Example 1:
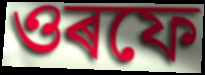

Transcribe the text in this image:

ওৰফে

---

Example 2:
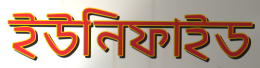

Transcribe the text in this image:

ইউনিফাইড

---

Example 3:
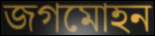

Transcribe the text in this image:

জগমোহন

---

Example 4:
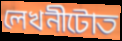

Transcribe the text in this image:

লেখনীটোত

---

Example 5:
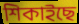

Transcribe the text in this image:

শিকাইছে